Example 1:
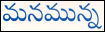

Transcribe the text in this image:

మనమున్న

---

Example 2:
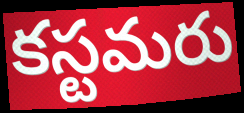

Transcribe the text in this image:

కస్టమరు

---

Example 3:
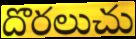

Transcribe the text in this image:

దొరలుచు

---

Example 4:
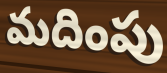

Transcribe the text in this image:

మదింపు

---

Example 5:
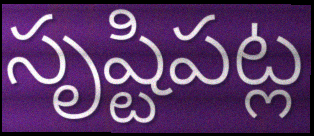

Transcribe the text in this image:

సృష్టిపట్ల